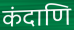
कंदाणि